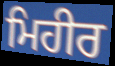
ਮਿਹੀਰ